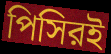
পিসিরই